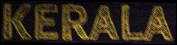
KERALA